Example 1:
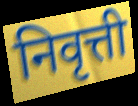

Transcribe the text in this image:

निवृत्ती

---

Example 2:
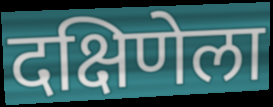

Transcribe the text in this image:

दक्षिणेला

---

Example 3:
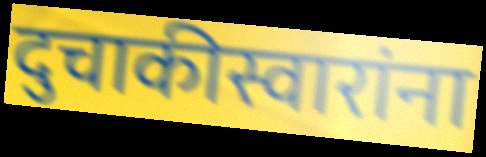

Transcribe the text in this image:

दुचाकीस्वारांना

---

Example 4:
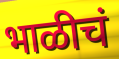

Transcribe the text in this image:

भाळीचं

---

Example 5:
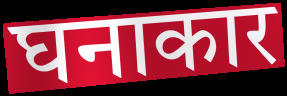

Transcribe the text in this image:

घनाकार